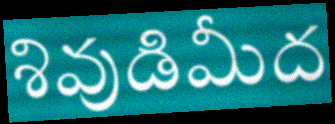
శివుడిమీద